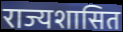
राज्यशासित